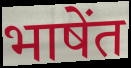
भाषेंत